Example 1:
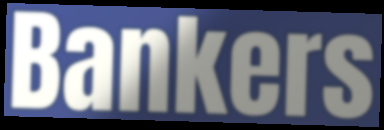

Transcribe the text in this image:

Bankers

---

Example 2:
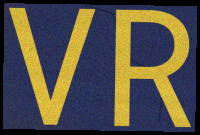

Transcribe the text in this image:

VR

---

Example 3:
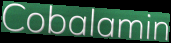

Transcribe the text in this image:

Cobalamin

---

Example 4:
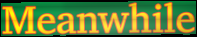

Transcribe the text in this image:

Meanwhile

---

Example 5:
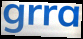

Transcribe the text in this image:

grra